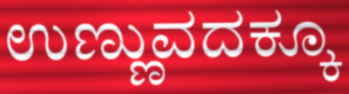
ಉಣ್ಣುವದಕ್ಕೂ